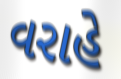
વરાહે